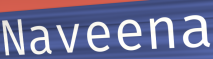
Naveena